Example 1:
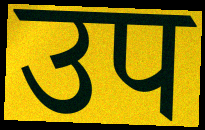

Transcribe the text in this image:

उप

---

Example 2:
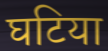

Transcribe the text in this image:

घटिया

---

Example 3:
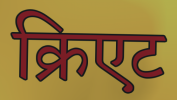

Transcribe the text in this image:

क्रिएट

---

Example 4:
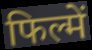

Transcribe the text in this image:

फिल्में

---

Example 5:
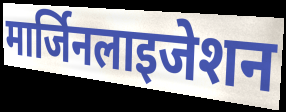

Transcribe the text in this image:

मार्जिनलाइजेशन